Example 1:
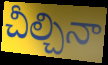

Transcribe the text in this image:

చీల్చినా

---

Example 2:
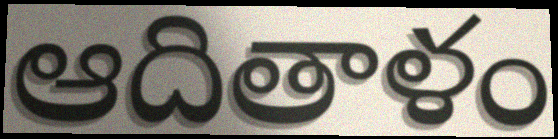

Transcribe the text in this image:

ఆదితాళం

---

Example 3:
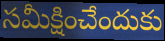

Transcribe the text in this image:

సమీక్షించేందుకు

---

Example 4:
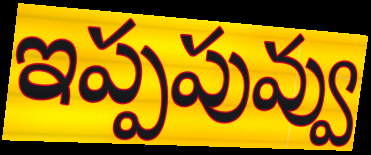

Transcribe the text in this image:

ఇప్పపువ్వు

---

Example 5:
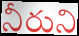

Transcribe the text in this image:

నీరుని